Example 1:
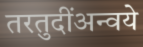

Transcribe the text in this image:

तरतुदींअन्वये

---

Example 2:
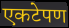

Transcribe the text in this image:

एकटेपण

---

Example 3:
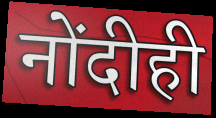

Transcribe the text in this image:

नोंदीही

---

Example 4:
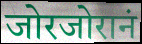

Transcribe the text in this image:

जोरजोरानं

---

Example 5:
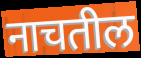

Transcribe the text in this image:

नाचतील